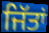
ਜਿੱਤਾਂ